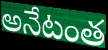
అనేటంత